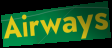
Airways